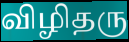
விழிதரு